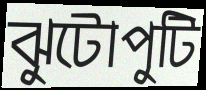
ঝুটোপুটি